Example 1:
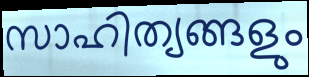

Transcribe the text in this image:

സാഹിത്യങ്ങളും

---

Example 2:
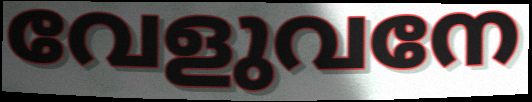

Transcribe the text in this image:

വേളുവനേ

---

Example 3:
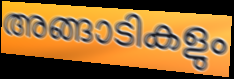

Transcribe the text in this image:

അങ്ങാടികളും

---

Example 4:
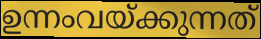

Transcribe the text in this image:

ഉന്നംവയ്ക്കുന്നത്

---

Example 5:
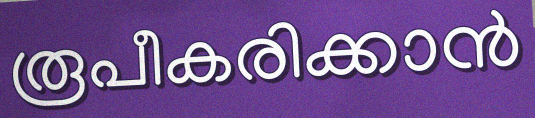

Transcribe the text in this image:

രൂപീകരിക്കാൻ